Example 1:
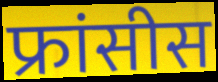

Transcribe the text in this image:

फ्रांसीस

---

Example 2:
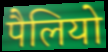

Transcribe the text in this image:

पैलियो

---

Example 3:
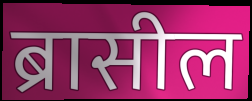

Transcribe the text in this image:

ब्रासील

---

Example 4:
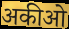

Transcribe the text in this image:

अकीओ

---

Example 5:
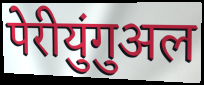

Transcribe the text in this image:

पेरीयुंगुअल